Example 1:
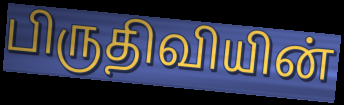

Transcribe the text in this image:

பிருதிவியின்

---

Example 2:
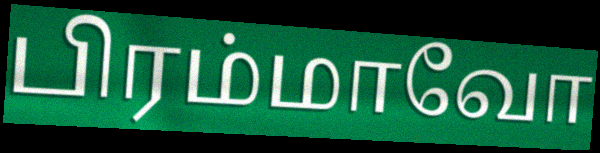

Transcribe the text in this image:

பிரம்மாவோ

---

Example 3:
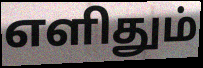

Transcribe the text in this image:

எளிதும்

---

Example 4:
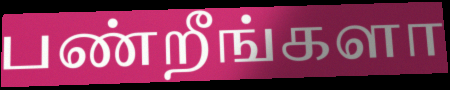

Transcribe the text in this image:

பண்றீங்களா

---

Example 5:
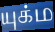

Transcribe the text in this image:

யுக்ம